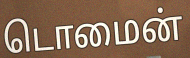
டொமைன்